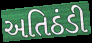
અતિઠંડી